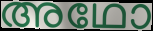
അഥോ